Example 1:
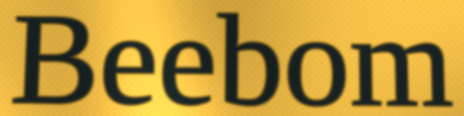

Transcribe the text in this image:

Beebom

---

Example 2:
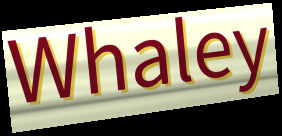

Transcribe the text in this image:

Whaley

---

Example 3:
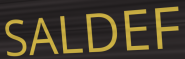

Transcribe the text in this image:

SALDEF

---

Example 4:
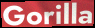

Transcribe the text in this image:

Gorilla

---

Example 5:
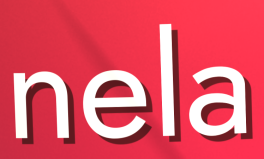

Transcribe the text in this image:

nela